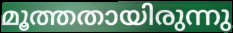
മൂത്തതായിരുന്നു